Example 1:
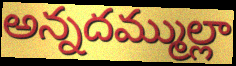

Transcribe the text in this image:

అన్నదమ్ముల్లా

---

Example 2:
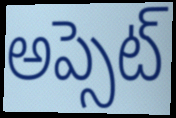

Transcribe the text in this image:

అప్సెట్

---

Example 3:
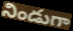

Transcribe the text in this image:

నిండుగా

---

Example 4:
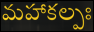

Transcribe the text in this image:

మహాకల్పః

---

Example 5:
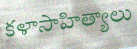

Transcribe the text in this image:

కళాసాహిత్యాలు